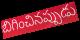
బిగించినప్పుడు